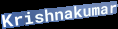
Krishnakumar